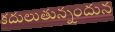
కదులుతున్నందున